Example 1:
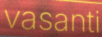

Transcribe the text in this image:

vasanti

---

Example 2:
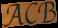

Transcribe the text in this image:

ACB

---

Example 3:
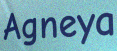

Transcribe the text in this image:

Agneya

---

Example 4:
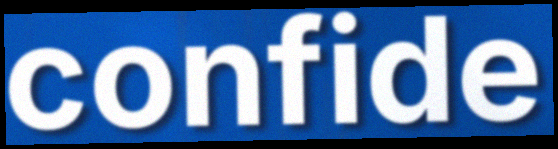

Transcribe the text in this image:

confide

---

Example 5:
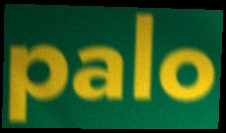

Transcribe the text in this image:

palo